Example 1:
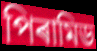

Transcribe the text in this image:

পিৰামিড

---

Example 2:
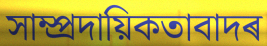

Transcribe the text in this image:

সাম্প্ৰদায়িকতাবাদৰ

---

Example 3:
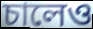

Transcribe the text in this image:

চালেও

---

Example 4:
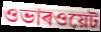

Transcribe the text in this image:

ওভাৰওয়েট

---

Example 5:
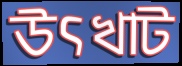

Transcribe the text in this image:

উৎখাট